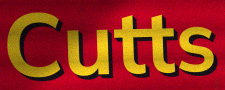
Cutts